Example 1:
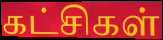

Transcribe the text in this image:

கட்சிகள்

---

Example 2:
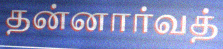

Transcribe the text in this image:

தன்னார்வத்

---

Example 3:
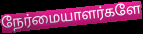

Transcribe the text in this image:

நேர்மையாளர்களே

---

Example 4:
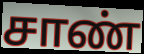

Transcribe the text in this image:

சாண்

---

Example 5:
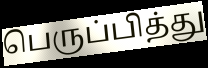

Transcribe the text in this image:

பெருப்பித்து